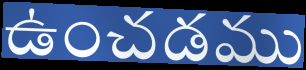
ఉంచడము